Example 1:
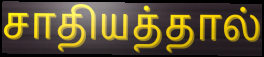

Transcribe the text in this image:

சாதியத்தால்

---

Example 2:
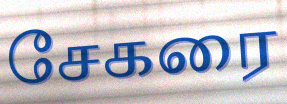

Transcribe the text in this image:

சேகரை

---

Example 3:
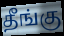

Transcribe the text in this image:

தீங்கு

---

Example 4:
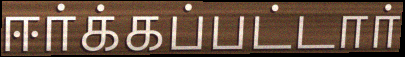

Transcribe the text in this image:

ஈர்க்கப்பட்டார்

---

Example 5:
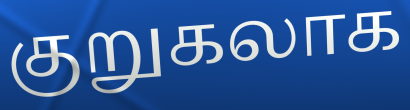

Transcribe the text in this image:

குறுகலாக